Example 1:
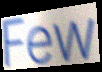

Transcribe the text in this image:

Few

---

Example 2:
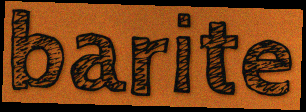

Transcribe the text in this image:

barite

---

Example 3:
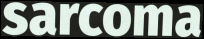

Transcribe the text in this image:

sarcoma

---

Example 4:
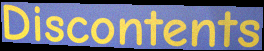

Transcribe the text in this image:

Discontents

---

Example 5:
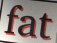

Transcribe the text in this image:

fat